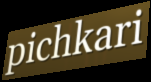
pichkari